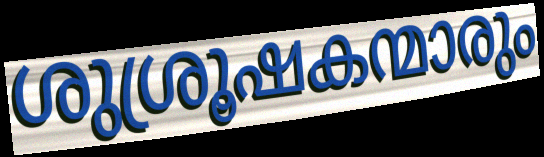
ശുശ്രൂഷകന്മാരും